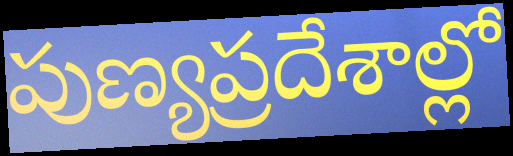
పుణ్యప్రదేశాల్లో